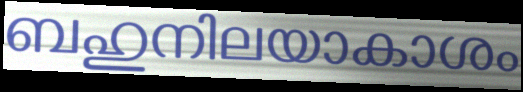
ബഹുനിലയാകാശം